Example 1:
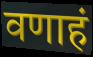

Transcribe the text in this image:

वणाहं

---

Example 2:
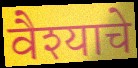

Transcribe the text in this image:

वैश्याचे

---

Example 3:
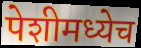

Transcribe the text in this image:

पेशीमध्येच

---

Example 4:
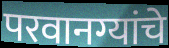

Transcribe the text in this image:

परवानग्यांचे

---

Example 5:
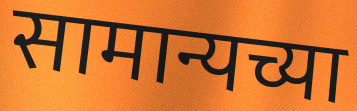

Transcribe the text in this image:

सामान्यच्या